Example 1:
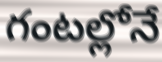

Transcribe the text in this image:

గంటల్లోనే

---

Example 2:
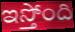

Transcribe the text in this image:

ఇస్తోంది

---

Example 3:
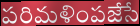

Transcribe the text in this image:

పరిమళింపజేసే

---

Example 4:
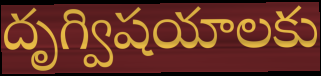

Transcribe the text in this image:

దృగ్విషయాలకు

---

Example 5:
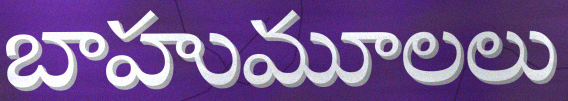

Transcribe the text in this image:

బాహుమూలలు